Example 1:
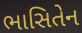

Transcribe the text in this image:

ભાસિતેન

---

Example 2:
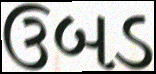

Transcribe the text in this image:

ઉબડ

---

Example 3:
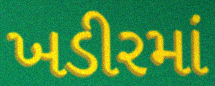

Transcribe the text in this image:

ખડીરમાં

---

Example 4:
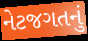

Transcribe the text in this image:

નેટજગતનું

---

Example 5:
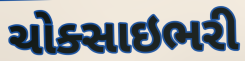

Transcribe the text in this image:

ચોક્સાઇભરી